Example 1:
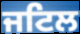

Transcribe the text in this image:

ਜਟਿਲ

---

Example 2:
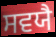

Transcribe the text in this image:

ਸਵਯੈ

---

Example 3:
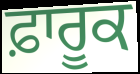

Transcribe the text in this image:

ਫ਼ਾਰੂਕ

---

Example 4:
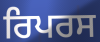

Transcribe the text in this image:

ਰਿਪਰਸ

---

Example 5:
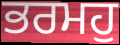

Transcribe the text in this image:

ਭਰਮਹੁ